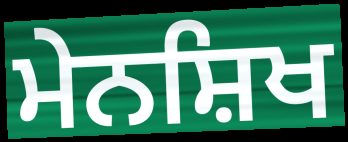
ਮੇਨਸ਼ਿਖ